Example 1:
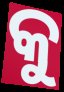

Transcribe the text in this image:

କୁ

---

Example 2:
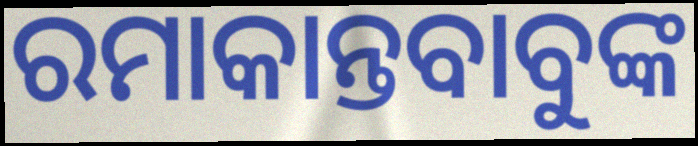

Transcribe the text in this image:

ରମାକାନ୍ତବାବୁଙ୍କ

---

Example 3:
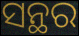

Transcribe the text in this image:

ସନ୍ଥର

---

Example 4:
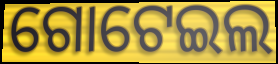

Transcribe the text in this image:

ଗୋଟେଇଲ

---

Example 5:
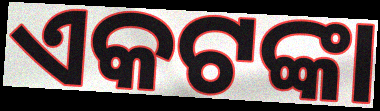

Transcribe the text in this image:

ଏକଟଙ୍କା